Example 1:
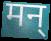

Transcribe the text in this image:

मन्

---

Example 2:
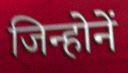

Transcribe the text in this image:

जिन्होनें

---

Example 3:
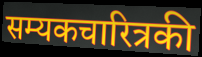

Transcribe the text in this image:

सम्यकचारित्रकी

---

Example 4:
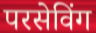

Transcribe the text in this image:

परसेविंग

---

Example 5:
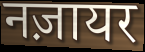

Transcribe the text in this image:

नज़ायर